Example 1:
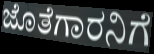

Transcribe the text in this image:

ಜೊತೆಗಾರನಿಗೆ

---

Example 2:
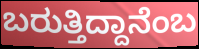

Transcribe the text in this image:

ಬರುತ್ತಿದ್ದಾನೆಂಬ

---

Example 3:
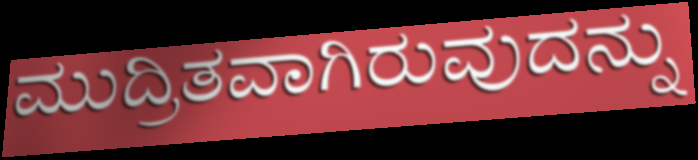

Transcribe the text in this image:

ಮುದ್ರಿತವಾಗಿರುವುದನ್ನು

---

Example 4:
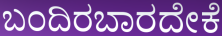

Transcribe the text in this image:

ಬಂದಿರಬಾರದೇಕೆ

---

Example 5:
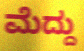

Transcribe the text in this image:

ಮೆದ್ದು